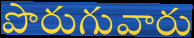
పొరుగువారు